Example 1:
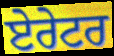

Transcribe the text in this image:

ਏਰੇਟਰ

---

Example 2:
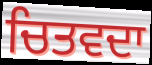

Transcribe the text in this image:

ਚਿਤਵਦਾ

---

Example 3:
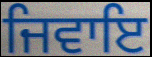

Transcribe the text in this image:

ਜਿਵਾਇ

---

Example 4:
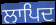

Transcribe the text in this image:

ਲਾਪਿਦ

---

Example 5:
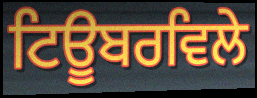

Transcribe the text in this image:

ਟਿਊਬਰਵਿਲੇ